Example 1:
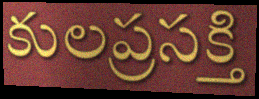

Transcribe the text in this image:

కులప్రసక్తి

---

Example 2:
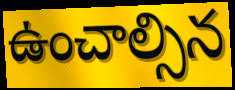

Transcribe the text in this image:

ఉంచాల్సిన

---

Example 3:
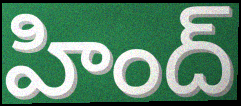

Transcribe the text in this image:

హింద్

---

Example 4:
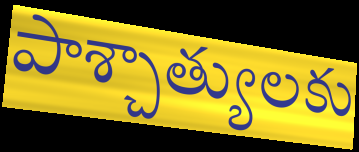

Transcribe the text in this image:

పాశ్చాత్యులకు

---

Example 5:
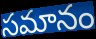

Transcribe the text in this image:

సమానం